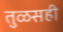
तुळसही